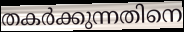
തകർക്കുന്നതിനെ